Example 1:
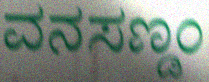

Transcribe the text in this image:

ವನಸಣ್ಡಂ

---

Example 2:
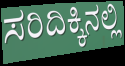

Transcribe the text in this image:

ಸರಿದಿಕ್ಕಿನಲ್ಲಿ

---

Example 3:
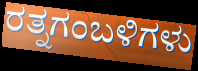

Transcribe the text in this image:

ರತ್ನಗಂಬಳಿಗಳು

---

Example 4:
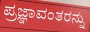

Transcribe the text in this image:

ಪ್ರಜ್ಞಾವಂತರನ್ನು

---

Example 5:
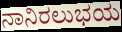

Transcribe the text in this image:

ನಾನಿರಲುಭಯ